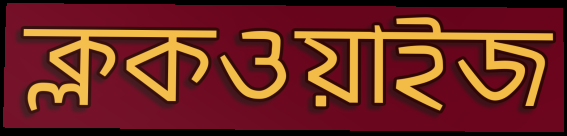
ক্লকওয়াইজ